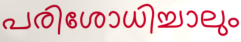
പരിശോധിച്ചാലും